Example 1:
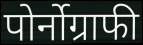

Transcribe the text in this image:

पोर्नोग्राफी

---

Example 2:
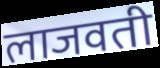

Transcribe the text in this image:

लाजवती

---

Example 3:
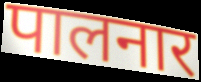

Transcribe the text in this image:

पालनार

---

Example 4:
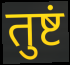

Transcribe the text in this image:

तुष्टं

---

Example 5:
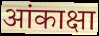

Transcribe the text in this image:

आंकाक्षा